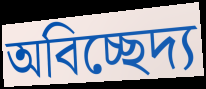
অবিচ্ছেদ্য